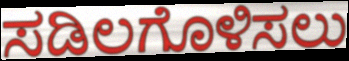
ಸಡಿಲಗೊಳಿಸಲು